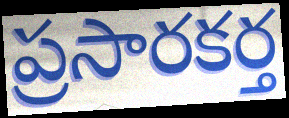
ప్రసారకర్త